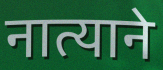
नात्याने